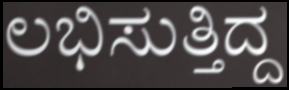
ಲಭಿಸುತ್ತಿದ್ದ